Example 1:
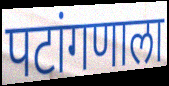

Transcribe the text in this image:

पटांगणाला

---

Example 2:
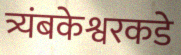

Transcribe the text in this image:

त्र्यंबकेश्वरकडे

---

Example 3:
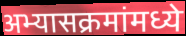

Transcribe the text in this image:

अभ्यासक्रमांमध्ये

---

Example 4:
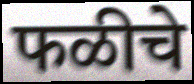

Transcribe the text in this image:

फळीचे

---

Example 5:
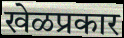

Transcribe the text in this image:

खेळप्रकार